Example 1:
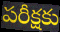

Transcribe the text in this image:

పరీక్షకు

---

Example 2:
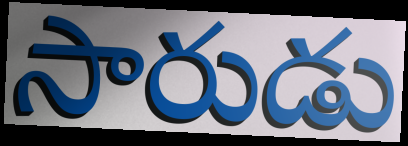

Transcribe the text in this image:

సారుడు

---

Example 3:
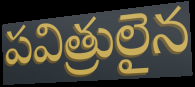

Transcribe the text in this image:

పవిత్రులైన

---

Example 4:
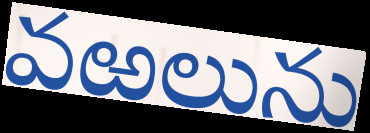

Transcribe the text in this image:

వఱలును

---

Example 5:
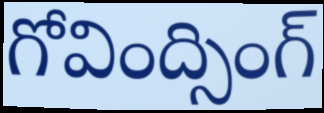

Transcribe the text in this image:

గోవింద్సింగ్